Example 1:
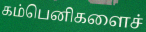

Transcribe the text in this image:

கம்பெனிகளைச்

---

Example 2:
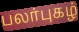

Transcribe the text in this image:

பலர்புகழ்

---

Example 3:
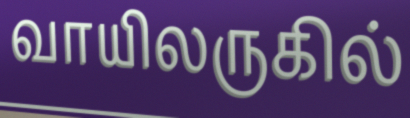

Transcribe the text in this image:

வாயிலருகில்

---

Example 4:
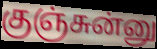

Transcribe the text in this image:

குஞ்சுன்னு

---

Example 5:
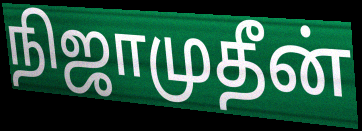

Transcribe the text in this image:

நிஜாமுதீன்